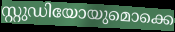
സ്റ്റുഡിയോയുമൊക്കെ